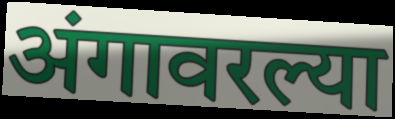
अंगावरल्या